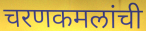
चरणकमलांची